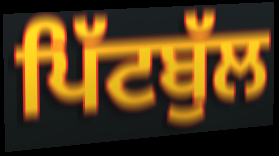
ਪਿੱਟਬੁੱਲ